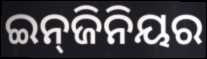
ଇନ୍‌ଜିନିୟର